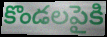
కొండలపైకి